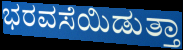
ಭರವಸೆಯಿಡುತ್ತಾ